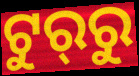
ଟୁର୍‍ରୁ